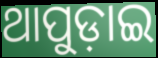
ଥାପୁଡ଼ାଇ